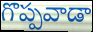
గొప్పవాడా